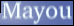
Mayou